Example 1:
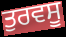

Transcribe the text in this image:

ਤੁਰਵਸੂ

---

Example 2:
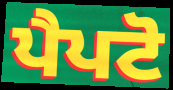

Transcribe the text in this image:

ਪੈਪਟੋ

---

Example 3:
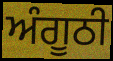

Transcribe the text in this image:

ਅੰਗੂਠੀ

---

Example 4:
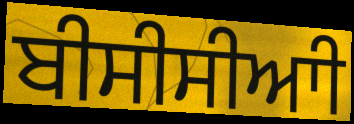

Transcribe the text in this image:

ਬੀਸੀਸੀਆੀ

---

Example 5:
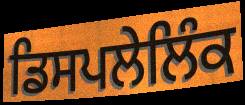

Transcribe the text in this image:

ਡਿਸਪਲੇਲਿੰਕ